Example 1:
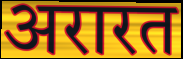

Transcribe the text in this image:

अरारत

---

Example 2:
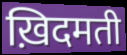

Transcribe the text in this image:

ख़िदमती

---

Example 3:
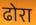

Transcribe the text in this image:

ढोरा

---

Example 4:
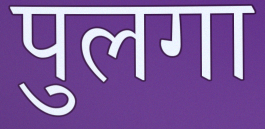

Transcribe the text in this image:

पुलगा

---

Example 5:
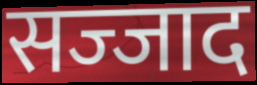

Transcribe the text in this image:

सज्‍जाद